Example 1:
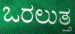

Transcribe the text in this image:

ಒರಲುತ್ತ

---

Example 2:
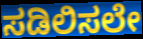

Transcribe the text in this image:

ಸಡಿಲಿಸಲೇ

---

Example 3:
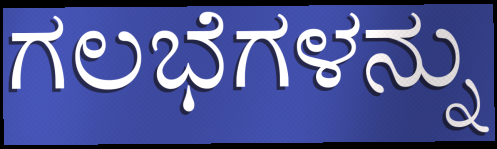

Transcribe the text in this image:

ಗಲಭೆಗಳನ್ನು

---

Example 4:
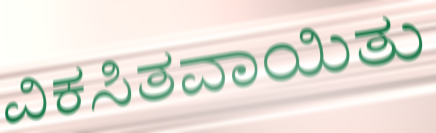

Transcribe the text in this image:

ವಿಕಸಿತವಾಯಿತು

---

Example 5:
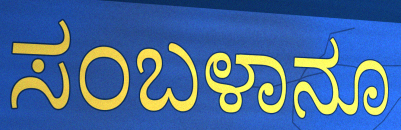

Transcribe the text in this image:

ಸಂಬಳಾನೂ